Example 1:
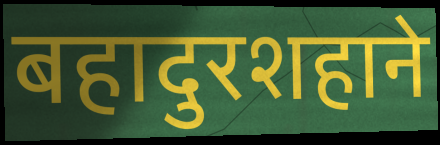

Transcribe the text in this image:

बहादुरशहाने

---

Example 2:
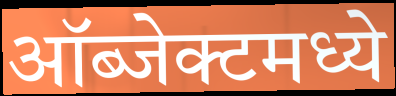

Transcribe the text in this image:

ऑब्जेक्टमध्ये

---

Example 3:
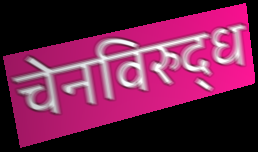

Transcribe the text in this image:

चेनविरुद्ध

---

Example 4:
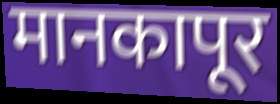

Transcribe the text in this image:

मानकापूर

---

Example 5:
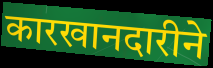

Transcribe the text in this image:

कारखानदारीने